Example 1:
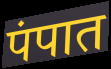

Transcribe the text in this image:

पंपात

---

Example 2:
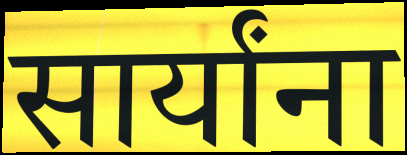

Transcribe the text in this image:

सार्यांना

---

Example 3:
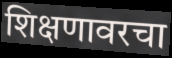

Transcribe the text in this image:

शिक्षणावरचा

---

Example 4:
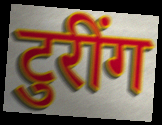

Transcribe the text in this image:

टुरींग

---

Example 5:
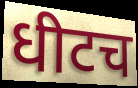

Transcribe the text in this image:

धीटच